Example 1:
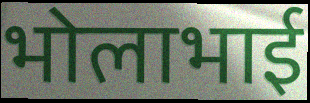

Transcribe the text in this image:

भोलाभाई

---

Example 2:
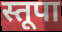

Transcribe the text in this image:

स्तूपा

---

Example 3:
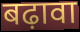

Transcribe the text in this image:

बढ़ावा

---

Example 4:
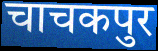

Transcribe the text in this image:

चाचकपुर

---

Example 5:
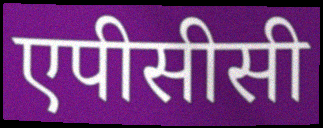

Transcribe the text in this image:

एपीसीसी